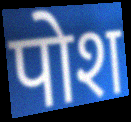
पोश